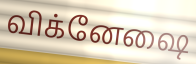
விக்னேஷை